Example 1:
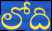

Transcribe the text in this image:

లోది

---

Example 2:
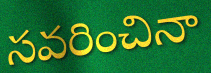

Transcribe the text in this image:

సవరించినా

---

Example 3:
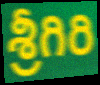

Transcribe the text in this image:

శ్రీగిరి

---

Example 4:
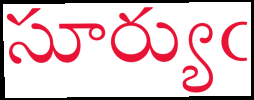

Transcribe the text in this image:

సూర్యుఁ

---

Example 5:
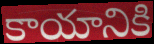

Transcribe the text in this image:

కాయానికి